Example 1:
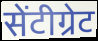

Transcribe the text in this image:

सेंटीग्रेट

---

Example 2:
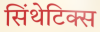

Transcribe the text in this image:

सिंथेटिक्स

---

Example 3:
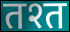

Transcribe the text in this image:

तश्त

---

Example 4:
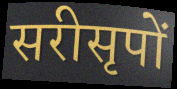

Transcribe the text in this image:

सरीसृपों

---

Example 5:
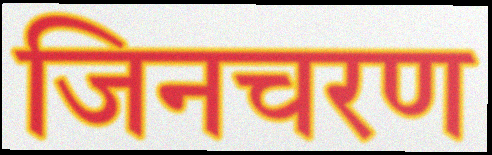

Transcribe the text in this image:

जिनचरण